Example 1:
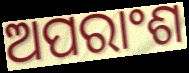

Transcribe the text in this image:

ଅପରାଂଶ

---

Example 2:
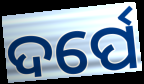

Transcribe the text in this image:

ଦର୍ପେ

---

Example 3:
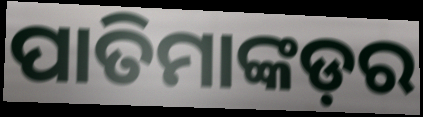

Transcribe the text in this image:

ପାତିମାଙ୍କଡ଼ର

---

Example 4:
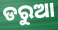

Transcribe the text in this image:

ଡରୁଆ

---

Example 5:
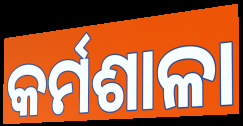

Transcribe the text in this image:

କର୍ମଶାଳା